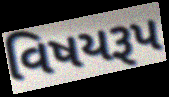
વિષયરૂપ